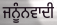
ਜਨੂੰਨਵਾਦੀ